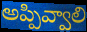
అప్పివ్వాలి